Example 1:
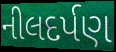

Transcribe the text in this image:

નીલદર્પણ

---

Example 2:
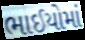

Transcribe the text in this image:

ભાઈયોમાં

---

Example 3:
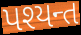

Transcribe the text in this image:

પશ્યન્ત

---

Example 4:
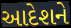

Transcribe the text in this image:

આદેશને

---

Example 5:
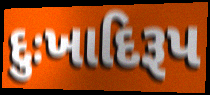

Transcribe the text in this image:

દુઃખાદિરૂપ